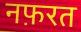
नफ़रत